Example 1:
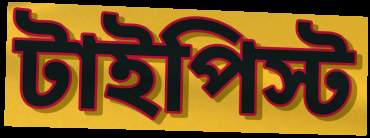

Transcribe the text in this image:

টাইপিস্ট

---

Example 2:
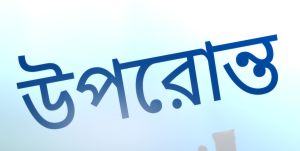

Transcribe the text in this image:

উপরোন্ত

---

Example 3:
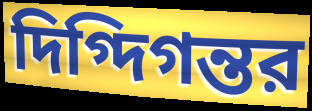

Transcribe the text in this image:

দিগ্দিগন্তর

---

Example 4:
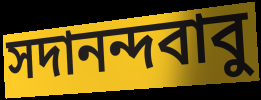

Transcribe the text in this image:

সদানন্দবাবু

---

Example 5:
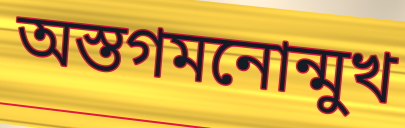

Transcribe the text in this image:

অস্তগমনোন্মুখ